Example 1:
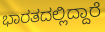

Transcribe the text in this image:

ಭಾರತದಲ್ಲಿದ್ದಾರೆ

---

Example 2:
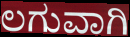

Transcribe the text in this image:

ಲಗುವಾಗಿ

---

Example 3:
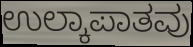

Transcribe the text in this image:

ಉಲ್ಕಾಪಾತವು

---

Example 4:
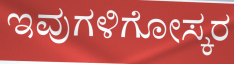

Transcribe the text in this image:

ಇವುಗಳಿಗೋಸ್ಕರ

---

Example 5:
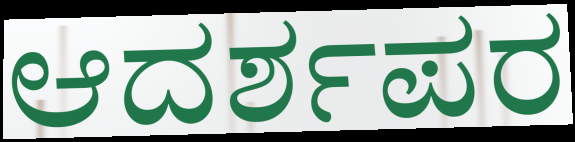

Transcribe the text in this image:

ಆದರ್ಶಪರ